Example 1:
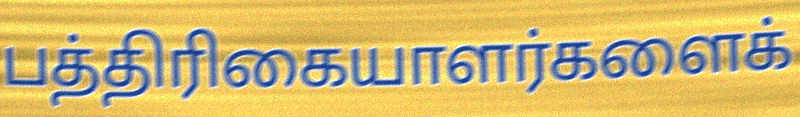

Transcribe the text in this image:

பத்திரிகையாளர்களைக்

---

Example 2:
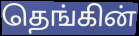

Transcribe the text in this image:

தெங்கின்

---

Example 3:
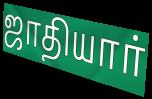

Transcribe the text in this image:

ஜாதியார்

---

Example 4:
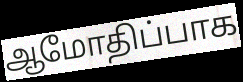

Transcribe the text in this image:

ஆமோதிப்பாக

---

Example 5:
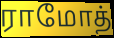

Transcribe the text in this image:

ராமோத்